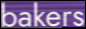
bakers